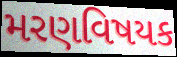
મરણવિષયક